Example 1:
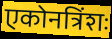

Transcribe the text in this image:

एकोनत्रिंशः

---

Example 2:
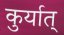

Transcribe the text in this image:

कुर्यात्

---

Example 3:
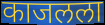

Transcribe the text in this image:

काजलला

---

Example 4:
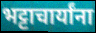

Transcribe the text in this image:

भट्टाचार्यांना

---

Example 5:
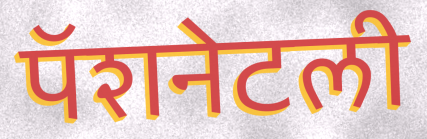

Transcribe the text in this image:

पॅशनेटली